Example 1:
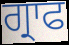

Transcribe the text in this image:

ਗ੍ਰਾਫ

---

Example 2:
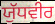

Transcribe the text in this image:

ਯੁੱਧਵੀਰ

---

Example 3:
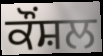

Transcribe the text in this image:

ਕੌਂਸ਼ਲ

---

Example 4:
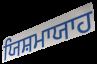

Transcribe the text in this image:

ਯਿਸ਼ਮਾਯਾਹ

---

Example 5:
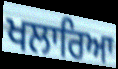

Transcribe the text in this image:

ਖਲਾਰਿਆ